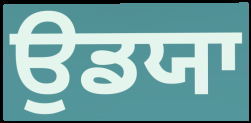
ਉਡਯਾ